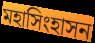
মহাসিংহাসন